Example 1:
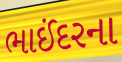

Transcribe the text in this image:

ભાઈંદરના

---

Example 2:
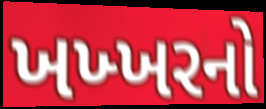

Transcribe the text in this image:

ખખ્ખરનો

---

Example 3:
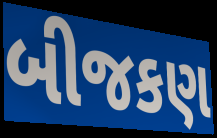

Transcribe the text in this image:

બીજકણ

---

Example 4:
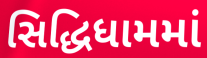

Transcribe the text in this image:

સિદ્ધિધામમાં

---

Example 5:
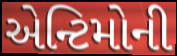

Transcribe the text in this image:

એન્ટિમોની